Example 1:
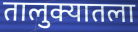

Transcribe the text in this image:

तालुक्यातला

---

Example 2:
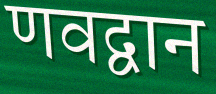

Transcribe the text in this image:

णवद्वान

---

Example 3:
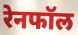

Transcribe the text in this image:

रेनफॉल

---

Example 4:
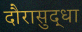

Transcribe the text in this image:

दौरासुद्धा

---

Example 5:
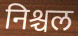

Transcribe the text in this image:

निश्चल